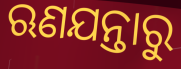
ଋଣଯନ୍ତାରୁ